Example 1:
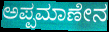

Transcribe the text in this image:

ಅಪ್ಪಮಾಣೇನ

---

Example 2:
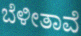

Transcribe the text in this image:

ಬೆಳೀತಾವೆ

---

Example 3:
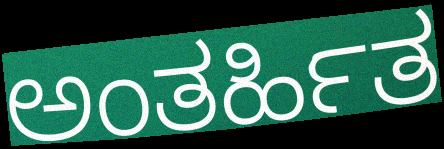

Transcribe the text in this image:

ಅಂತರ್ಹಿತ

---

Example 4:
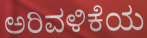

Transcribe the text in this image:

ಅರಿವಳಿಕೆಯ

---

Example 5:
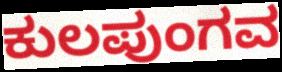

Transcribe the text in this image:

ಕುಲಪುಂಗವ